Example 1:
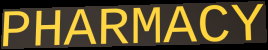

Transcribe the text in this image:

PHARMACY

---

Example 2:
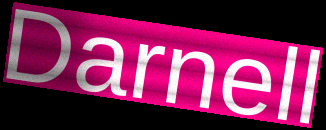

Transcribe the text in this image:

Darnell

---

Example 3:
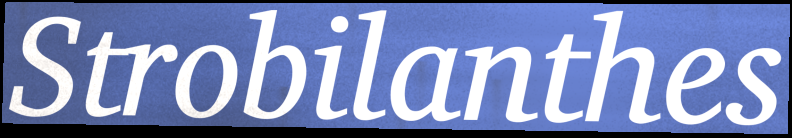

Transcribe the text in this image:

Strobilanthes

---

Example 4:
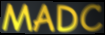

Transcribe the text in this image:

MADC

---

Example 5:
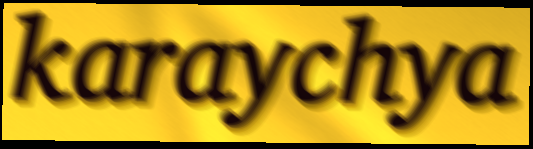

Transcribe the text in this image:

karaychya